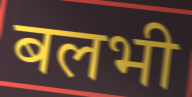
बलभी